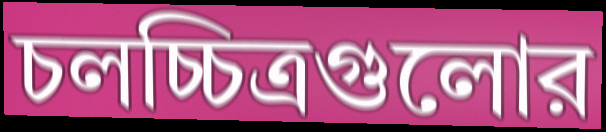
চলচ্চিত্রগুলোর